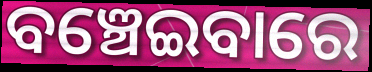
ବଞ୍ଚେଇବାରେ